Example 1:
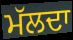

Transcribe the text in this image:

ਮੱਲਦਾ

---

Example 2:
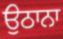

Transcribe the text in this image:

ਉਠਾਨਾ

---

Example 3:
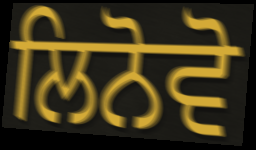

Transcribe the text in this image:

ਲਿਨੋਵੋ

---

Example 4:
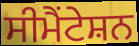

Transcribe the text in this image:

ਸੀਮੈਂਟੇਸ਼ਨ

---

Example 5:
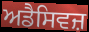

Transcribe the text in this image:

ਅਡੈਸਿਵਜ਼